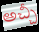
అచ్చీ